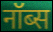
नॉब्स